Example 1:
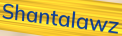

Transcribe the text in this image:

Shantalawz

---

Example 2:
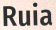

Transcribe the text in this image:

Ruia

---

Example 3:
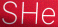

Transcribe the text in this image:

SHe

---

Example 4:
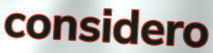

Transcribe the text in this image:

considero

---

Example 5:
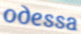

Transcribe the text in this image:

odessa